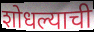
शोधल्याची